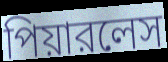
পিয়ারলেস